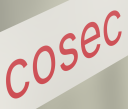
cosec